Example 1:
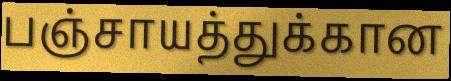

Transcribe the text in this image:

பஞ்சாயத்துக்கான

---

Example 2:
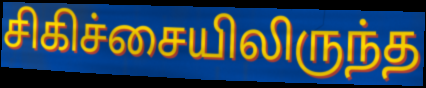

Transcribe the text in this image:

சிகிச்சையிலிருந்த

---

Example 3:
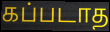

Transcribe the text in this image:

கப்படாத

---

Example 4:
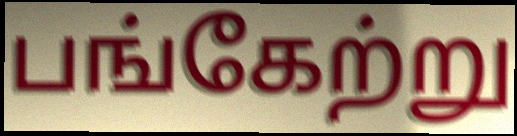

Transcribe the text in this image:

பங்கேற்று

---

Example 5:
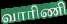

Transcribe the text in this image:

வாரிணி